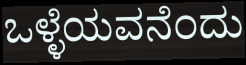
ಒಳ್ಳೆಯವನೆಂದು